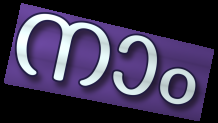
നാം